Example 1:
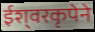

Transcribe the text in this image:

ईश्वरकृपेने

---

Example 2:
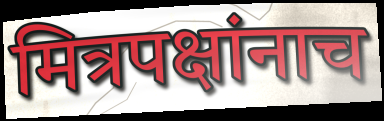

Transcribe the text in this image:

मित्रपक्षांनाच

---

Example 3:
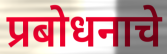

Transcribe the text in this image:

प्रबोधनाचे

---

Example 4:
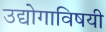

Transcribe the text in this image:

उद्योगाविषयी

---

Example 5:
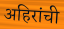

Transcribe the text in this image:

अहिरांची